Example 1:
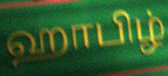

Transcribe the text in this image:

ஹாபிழ்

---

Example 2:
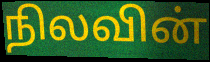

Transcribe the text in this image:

நிலவின்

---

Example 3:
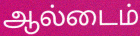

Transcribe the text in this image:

ஆல்டைம்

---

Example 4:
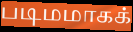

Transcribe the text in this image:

படிமமாகக்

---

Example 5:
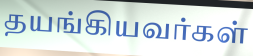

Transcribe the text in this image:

தயங்கியவர்கள்